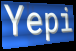
Yepi